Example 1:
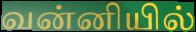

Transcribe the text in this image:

வன்னியில்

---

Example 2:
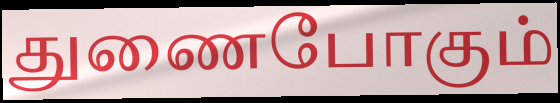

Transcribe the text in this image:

துணைபோகும்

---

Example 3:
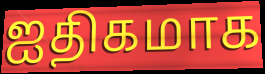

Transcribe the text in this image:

ஐதிகமாக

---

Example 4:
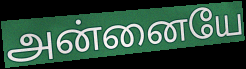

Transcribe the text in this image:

அன்னையே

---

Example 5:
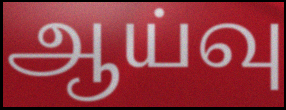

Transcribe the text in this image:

ஆய்வு